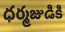
ధర్మజుడికి